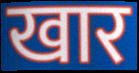
खार